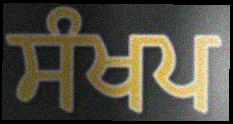
ਸੰਖਪ